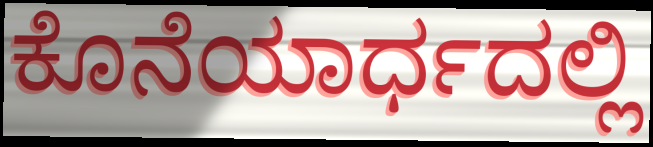
ಕೊನೆಯಾರ್ಧದಲ್ಲಿ